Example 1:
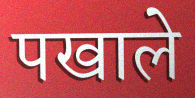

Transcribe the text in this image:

पखाले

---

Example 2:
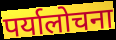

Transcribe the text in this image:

पर्यालोचना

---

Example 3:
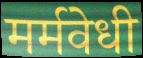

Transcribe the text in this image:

मर्मवेधी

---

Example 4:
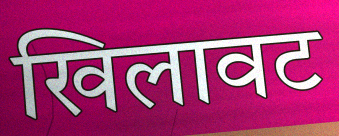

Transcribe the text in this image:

खिलावट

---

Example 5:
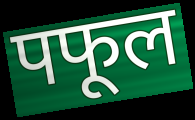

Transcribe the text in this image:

पफूल